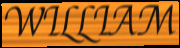
WILLIAM